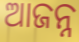
ଆଜନ୍ନ